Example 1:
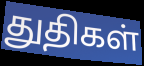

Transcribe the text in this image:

துதிகள்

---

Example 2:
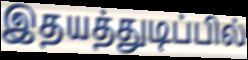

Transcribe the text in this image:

இதயத்துடிப்பில்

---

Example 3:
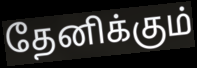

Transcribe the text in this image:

தேனிக்கும்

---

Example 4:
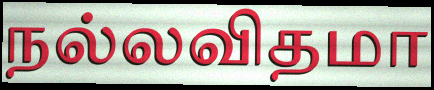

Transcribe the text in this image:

நல்லவிதமா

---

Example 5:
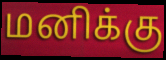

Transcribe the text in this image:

மனிக்கு